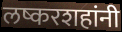
लष्करशहांनी